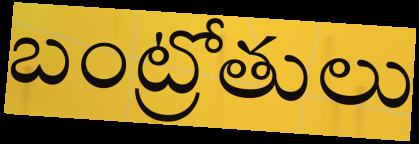
బంట్రోతులు